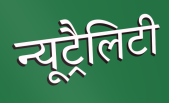
न्यूट्रैलिटी